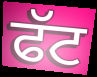
ਫੱਟ